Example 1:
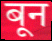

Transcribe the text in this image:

बून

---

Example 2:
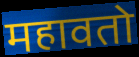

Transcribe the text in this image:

महावतो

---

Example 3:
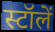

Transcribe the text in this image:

स्टॉलें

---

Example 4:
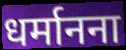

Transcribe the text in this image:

धर्मानना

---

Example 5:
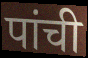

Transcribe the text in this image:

पांची